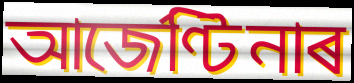
আৰ্জেণ্টিনাৰ